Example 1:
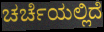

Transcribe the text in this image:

ಚರ್ಚೆಯಲ್ಲಿದೆ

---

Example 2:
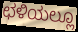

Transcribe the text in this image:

ಛಳಿಯಲ್ಲೂ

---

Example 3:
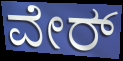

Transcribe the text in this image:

ವೇರ್‍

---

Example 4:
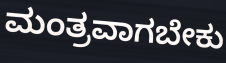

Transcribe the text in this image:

ಮಂತ್ರವಾಗಬೇಕು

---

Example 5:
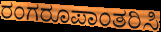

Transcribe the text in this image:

ರಂಗರೂಪಾಂತರಿಸಿ